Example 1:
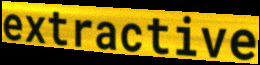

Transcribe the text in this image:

extractive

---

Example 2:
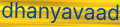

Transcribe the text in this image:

dhanyavaad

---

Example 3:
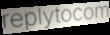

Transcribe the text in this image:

replytocom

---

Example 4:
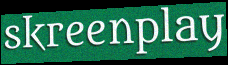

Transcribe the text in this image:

skreenplay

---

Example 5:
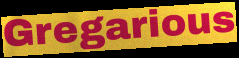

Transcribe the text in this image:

Gregarious